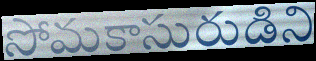
సోమకాసురుడిని